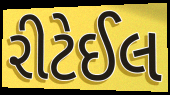
રીટેઈલ